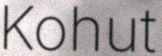
Kohut